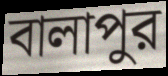
বালাপুর